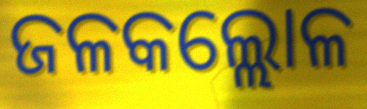
ଜଳକଲ୍ଲୋଳ